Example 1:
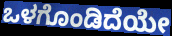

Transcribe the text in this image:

ಒಳಗೊಂಡಿದೆಯೇ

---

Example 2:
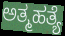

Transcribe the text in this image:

ಅತ್ಮಹತ್ಯೆ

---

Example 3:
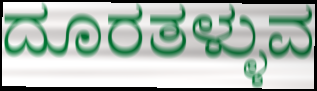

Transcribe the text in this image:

ದೂರತಳ್ಳುವ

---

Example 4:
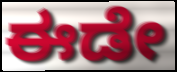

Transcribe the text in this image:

ಈಡೇ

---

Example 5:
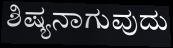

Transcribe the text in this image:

ಶಿಷ್ಯನಾಗುವುದು